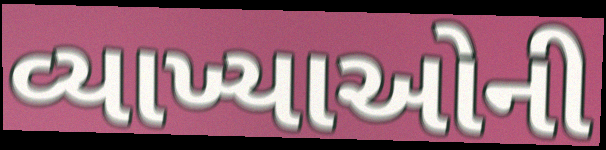
વ્યાખ્યાઓની